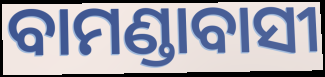
ବାମଣ୍ଡାବାସୀ